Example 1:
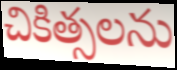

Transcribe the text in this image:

చికిత్సలను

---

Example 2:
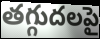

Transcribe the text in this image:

తగ్గుదలపై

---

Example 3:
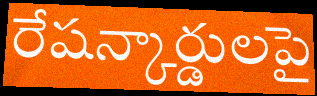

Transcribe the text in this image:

రేషన్కార్డులపై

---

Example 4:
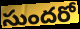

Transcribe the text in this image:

సుందరో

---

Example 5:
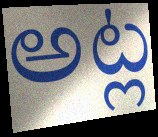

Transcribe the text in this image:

అట్ల